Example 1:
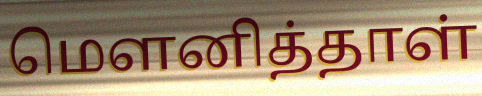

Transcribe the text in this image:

மௌனித்தாள்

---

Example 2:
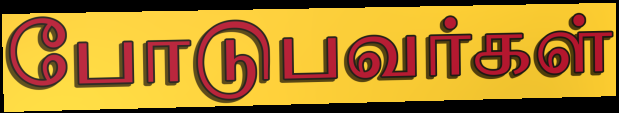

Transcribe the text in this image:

போடுபவர்கள்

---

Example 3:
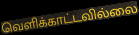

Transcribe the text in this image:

வெளிக்காட்டவில்லை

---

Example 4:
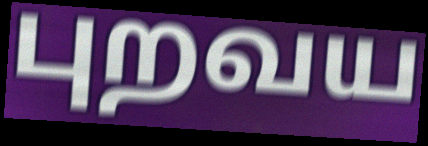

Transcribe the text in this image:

புறவய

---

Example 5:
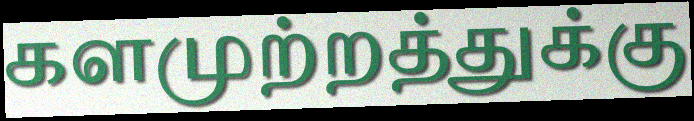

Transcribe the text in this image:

களமுற்றத்துக்கு